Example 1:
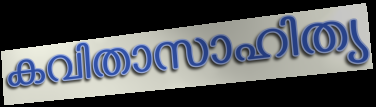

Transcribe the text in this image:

കവിതാസാഹിത്യ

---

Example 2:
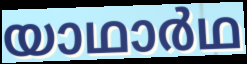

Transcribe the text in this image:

യാഥാർഥ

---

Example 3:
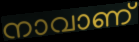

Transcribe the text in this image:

നാവാണ്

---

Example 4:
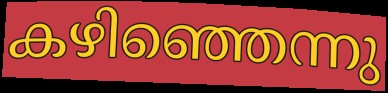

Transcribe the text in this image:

കഴിഞ്ഞെന്നു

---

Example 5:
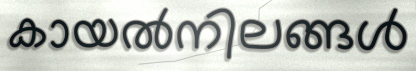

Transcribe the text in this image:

കായൽനിലങ്ങൾ